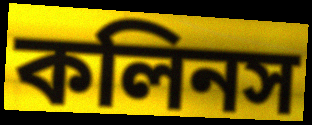
কলিনস